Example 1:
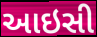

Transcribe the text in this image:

આઇસી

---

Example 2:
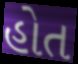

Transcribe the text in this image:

હોત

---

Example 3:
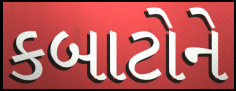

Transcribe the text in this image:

કબાટોને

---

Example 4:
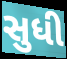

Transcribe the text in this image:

સુધી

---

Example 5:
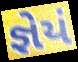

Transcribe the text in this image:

જ્ઞેયં